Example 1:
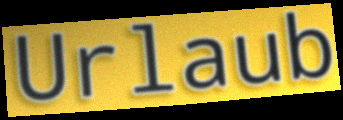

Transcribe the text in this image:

Urlaub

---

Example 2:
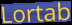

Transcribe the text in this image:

Lortab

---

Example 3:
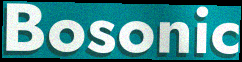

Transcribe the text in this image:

Bosonic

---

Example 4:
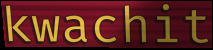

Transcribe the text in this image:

kwachit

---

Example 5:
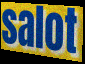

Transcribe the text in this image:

salot